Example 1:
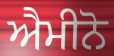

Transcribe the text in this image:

ਐਮੀਨੋ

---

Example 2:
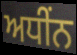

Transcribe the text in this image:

ਅਧੀਂਨ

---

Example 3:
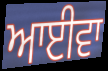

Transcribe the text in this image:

ਆਈਵਾ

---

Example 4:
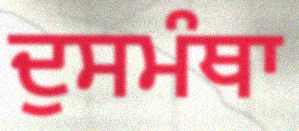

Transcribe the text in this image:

ਦੁਸਮੰਥਾ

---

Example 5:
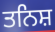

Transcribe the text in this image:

ਤਨਿਸ਼